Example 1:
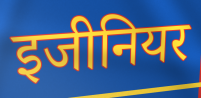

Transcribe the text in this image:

इजीनियर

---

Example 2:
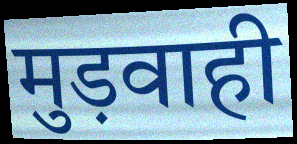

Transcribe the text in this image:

मुड़वाही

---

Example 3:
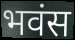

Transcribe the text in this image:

भवंस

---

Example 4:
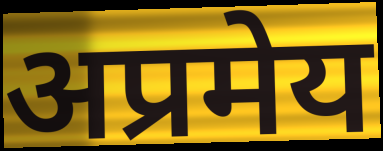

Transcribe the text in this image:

अप्रमेय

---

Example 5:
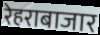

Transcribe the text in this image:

रेहराबाजार